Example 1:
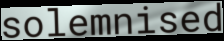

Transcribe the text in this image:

solemnised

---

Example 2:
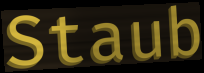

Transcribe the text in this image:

Staub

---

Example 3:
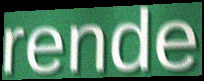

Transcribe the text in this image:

rende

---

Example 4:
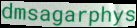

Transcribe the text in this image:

dmsagarphys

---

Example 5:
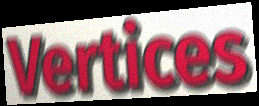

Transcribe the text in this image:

Vertices